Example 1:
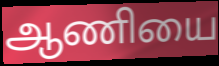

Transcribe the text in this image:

ஆணியை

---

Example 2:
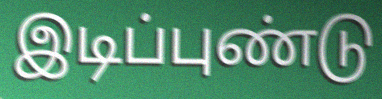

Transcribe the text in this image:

இடிப்புண்டு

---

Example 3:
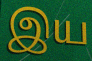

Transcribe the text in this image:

இய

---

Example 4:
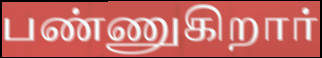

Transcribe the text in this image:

பண்ணுகிறார்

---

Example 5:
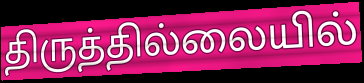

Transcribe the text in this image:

திருத்தில்லையில்